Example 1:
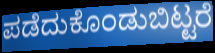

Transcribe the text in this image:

ಪಡೆದುಕೊಂಡುಬಿಟ್ಟರೆ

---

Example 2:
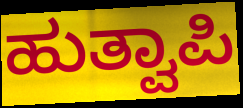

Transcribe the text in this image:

ಹುತ್ವಾಪಿ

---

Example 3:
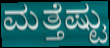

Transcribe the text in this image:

ಮತ್ತೆಷ್ಟು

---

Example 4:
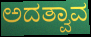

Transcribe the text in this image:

ಅದತ್ವಾವ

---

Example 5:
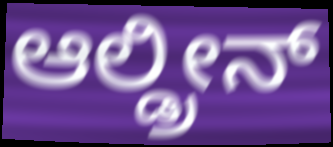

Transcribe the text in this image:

ಆಲ್ಡ್ರೀನ್